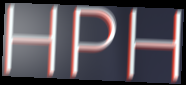
HPH